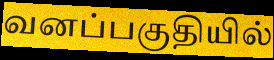
வனப்பகுதியில்